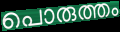
പൊരുത്തം